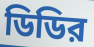
ডিডির